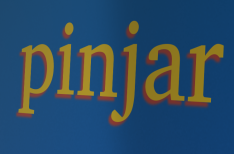
pinjar